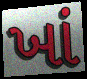
ખાં